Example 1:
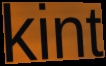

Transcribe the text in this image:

kint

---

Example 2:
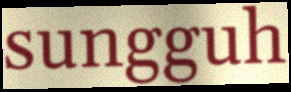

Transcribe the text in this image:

sungguh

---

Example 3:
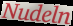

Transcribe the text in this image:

Nudeln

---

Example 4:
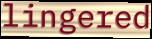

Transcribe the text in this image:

lingered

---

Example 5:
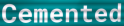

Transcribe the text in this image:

Cemented